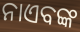
ନାଏବଙ୍କ